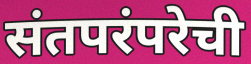
संतपरंपरेची